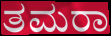
ತಮರಾ